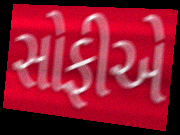
સોફીએ